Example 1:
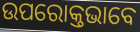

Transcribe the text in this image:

ଉପରୋକ୍ତଭାବେ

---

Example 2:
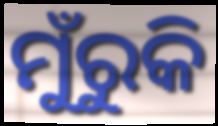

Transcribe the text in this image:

ମୁଁରୁକି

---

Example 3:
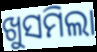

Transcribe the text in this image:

ଖୁସମିଲା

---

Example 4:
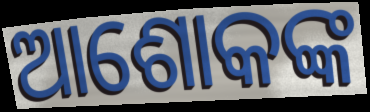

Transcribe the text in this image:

ଆଶୋକଙ୍କ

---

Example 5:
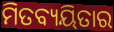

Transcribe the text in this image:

ମିତବ୍ୟୟିତାର